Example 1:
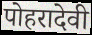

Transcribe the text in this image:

पोहरादेवी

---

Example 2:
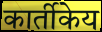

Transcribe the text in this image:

कार्तीकेय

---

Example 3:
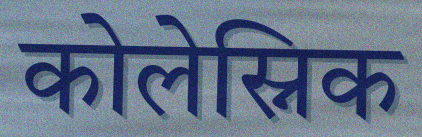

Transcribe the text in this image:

कोलेस्निक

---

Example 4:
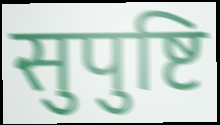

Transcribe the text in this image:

सुपुष्टि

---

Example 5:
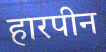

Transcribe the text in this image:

हारपीन